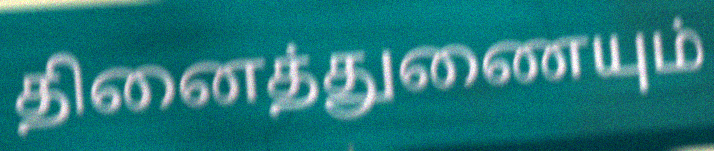
தினைத்துணையும்